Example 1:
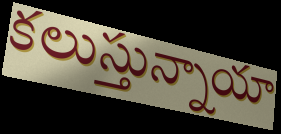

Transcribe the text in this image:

కలుస్తున్నాయా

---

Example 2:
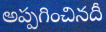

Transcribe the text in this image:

అప్పగించినదీ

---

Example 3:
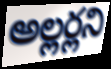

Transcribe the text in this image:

అల్లర్లని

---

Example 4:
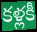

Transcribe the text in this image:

కళ్లకీ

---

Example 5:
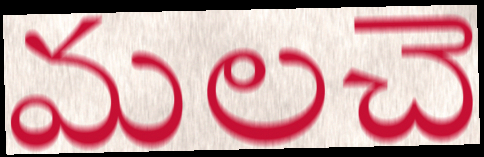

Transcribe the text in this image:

మలచె